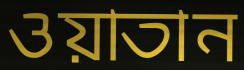
ওয়াতান